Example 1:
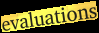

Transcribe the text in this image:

evaluations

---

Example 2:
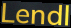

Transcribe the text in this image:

Lendl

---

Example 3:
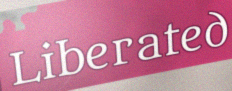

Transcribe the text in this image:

Liberated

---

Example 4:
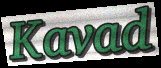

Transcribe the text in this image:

Kavad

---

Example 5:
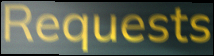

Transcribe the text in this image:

Requests